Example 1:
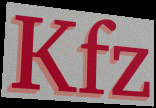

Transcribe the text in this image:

Kfz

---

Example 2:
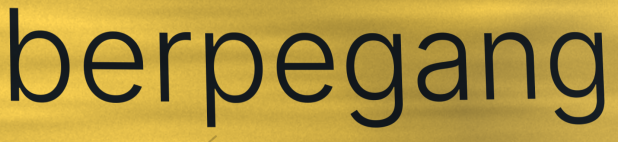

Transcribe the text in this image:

berpegang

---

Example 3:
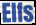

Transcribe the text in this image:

Elfs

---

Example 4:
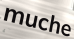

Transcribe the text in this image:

muche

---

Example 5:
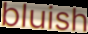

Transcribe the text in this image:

bluish